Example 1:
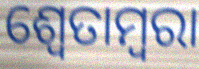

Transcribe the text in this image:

ଶ୍ୱେତାମ୍ବରା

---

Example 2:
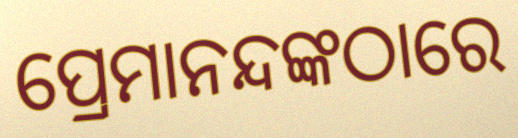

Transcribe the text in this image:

ପ୍ରେମାନନ୍ଦଙ୍କଠାରେ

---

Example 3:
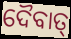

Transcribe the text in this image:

ଦୈବାତ୍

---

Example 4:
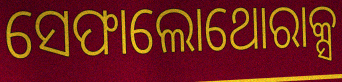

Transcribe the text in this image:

ସେଫାଲୋଥୋରାକ୍ସ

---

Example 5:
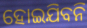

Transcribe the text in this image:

ହୋଇଯିବନି